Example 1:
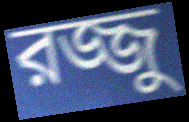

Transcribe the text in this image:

রজ্জু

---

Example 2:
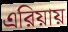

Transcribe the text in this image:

এরিয়ায়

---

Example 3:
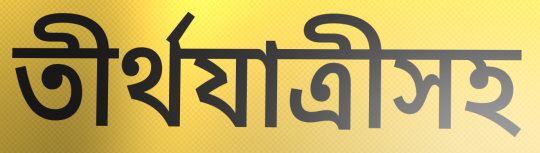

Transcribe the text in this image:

তীর্থযাত্রীসহ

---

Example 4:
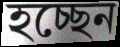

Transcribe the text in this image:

হচ্ছেন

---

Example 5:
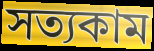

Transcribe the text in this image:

সত্যকাম